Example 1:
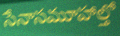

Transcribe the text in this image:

సేనాసమూహాల్తో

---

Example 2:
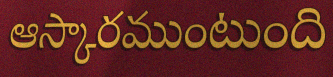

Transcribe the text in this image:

ఆస్కారముంటుంది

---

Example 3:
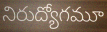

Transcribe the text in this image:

నిరుద్యోగమూ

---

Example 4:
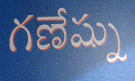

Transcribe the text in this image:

గణేష్ను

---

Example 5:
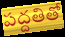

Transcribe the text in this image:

పద్దతితో